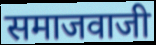
समाजवाजी